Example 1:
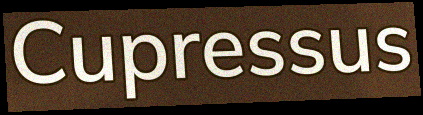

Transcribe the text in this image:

Cupressus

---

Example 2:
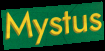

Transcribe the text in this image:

Mystus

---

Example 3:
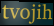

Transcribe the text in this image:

tvojih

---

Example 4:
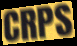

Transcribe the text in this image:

CRPS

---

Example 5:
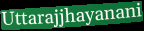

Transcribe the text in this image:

Uttarajjhayanani